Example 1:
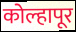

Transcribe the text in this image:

कोल्हापूर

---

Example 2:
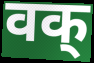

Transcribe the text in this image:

वक्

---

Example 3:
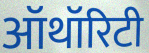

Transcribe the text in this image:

ऑथॉरिटी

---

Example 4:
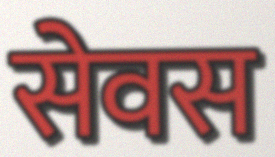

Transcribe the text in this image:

सेवस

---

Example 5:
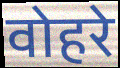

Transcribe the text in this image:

वोहरे